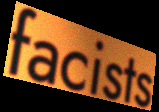
facists